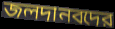
জলদানবদের